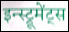
इन्स्ट्रूमेंट्स